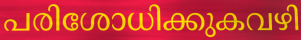
പരിശോധിക്കുകവഴി